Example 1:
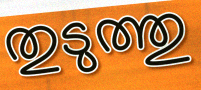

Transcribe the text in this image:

തുടുത്തു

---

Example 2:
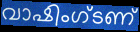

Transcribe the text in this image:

വാഷിംഗ്ടണ്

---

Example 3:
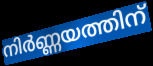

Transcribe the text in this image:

നിർണ്ണയത്തിന്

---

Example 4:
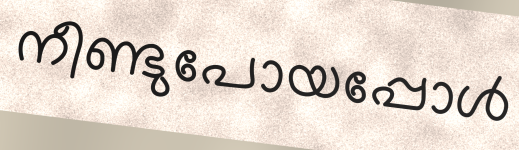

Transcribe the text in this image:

നീണ്ടുപോയപ്പോൾ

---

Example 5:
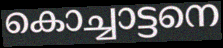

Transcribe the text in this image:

കൊച്ചാട്ടനെ